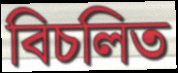
বিচলিত